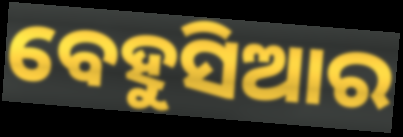
ବେହୁସିଆର